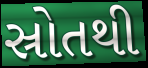
સ્રોતથી